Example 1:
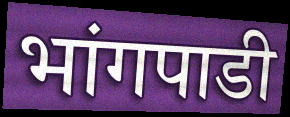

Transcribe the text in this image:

भांगपाडी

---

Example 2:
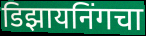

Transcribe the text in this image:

डिझायनिंगचा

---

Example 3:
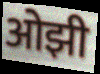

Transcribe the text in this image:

ओझी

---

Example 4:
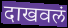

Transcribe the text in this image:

दाखवलं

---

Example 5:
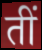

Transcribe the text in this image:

तीं